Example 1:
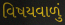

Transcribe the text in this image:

વિષયવાળું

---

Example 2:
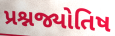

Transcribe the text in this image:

પ્રશ્નજ્યોતિષ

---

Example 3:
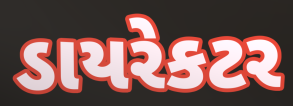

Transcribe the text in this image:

ડાયરેકટર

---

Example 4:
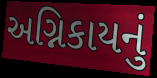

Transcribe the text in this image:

અગ્નિકાયનું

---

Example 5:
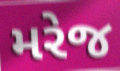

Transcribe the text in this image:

મરેજ